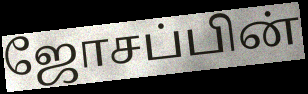
ஜோசப்பின்